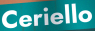
Ceriello